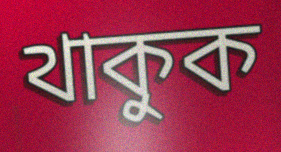
থাকুক